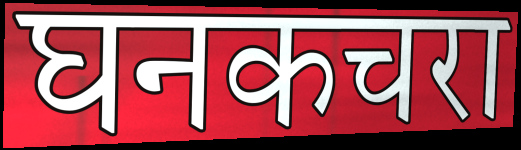
घनकचरा